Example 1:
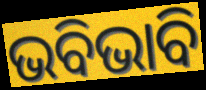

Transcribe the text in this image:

ଭବିଭାବି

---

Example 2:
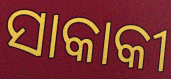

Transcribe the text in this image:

ସାକାକୀ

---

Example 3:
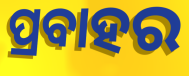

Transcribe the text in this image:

ପ୍ରବାହର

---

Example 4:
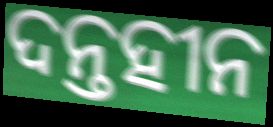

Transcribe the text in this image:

ଦନ୍ତହୀନ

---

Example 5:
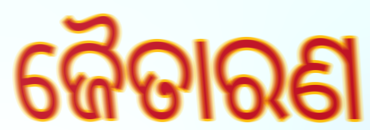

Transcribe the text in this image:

ଜୈତାରଣ